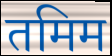
तमिम